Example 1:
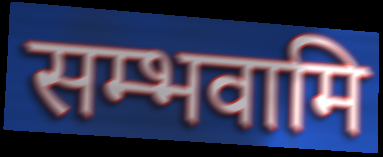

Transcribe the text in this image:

सम्भवामि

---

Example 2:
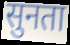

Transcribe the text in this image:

सुनता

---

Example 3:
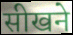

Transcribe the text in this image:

सीखने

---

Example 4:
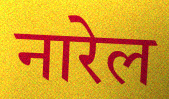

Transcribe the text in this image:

नारेल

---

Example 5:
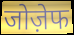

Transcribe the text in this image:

जोज़ेफ